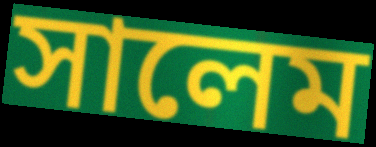
সালেম